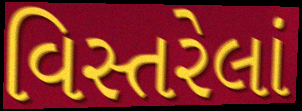
વિસ્તરેલાં